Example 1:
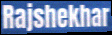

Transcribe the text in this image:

Rajshekhar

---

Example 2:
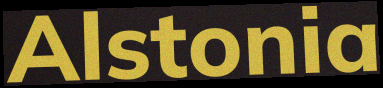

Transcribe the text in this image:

Alstonia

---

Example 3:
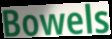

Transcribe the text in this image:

Bowels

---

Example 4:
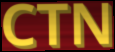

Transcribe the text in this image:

CTN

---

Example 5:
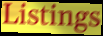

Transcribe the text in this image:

Listings